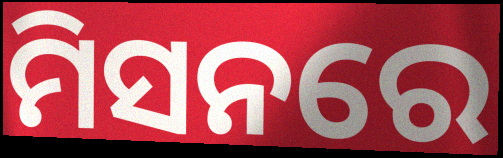
ମିସନରେ